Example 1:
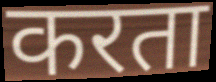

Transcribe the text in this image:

करता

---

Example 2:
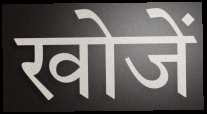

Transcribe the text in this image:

खोजें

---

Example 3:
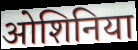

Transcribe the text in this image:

ओशिनिया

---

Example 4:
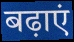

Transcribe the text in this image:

बढ़ाएं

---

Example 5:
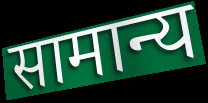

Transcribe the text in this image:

सामान्य